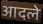
आदले